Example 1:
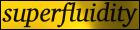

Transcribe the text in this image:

superfluidity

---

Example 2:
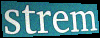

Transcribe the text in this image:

strem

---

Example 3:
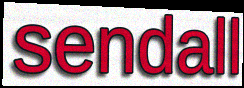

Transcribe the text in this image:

sendall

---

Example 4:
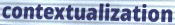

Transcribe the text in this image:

contextualization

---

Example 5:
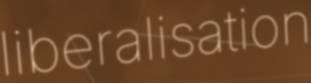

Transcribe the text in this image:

liberalisation